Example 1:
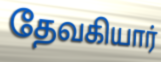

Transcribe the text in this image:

தேவகியார்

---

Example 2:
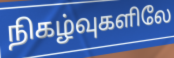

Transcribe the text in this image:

நிகழ்வுகளிலே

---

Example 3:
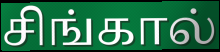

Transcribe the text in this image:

சிங்கால்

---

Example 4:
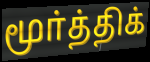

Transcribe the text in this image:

மூர்த்திக்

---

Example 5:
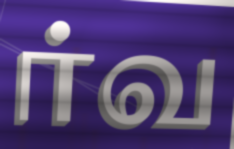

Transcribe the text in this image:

ர்வ